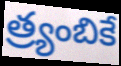
త్ర్యంబికే